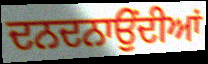
ਦਨਦਨਾਉਂਦੀਆਂ